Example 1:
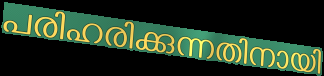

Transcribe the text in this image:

പരിഹരിക്കുന്നതിനായി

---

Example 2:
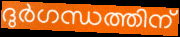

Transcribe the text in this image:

ദുർഗന്ധത്തിന്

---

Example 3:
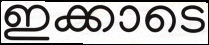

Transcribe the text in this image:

ഇക്കാടെ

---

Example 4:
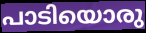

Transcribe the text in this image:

പാടിയൊരു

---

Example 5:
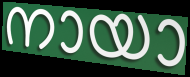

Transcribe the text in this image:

നായാ